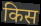
किस